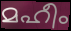
മഹീം